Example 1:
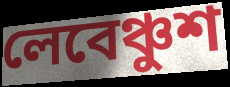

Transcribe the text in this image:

লেবেঞ্চুশ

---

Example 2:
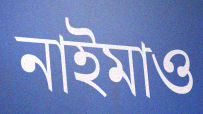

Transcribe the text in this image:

নাইমাও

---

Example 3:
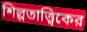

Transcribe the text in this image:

শিল্পতাত্ত্বিকের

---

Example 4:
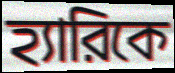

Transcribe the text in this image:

হ্যারিকে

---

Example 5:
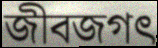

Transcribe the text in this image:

জীবজগৎ